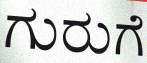
ಗುರುಗೆ